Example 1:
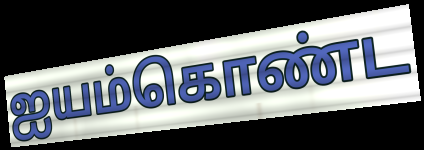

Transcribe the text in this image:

ஐயம்கொண்ட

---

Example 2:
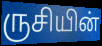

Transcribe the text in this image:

ருசியின்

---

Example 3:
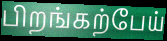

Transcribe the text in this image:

பிறங்கற்பேய்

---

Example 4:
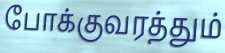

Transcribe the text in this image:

போக்குவரத்தும்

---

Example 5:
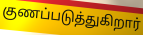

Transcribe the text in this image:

குணப்படுத்துகிறார்